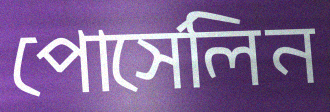
পোর্সেলিন